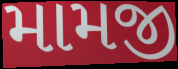
મામજી